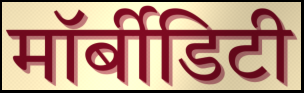
मॉर्बीडिटी